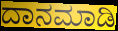
ದಾನಮಾಡಿ